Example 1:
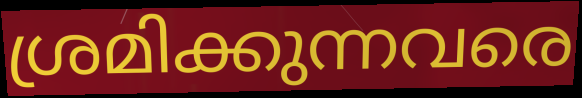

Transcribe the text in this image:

ശ്രമിക്കുന്നവരെ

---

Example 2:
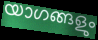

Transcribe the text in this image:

യാഗങ്ങളും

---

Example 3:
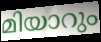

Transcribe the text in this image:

മിയാറും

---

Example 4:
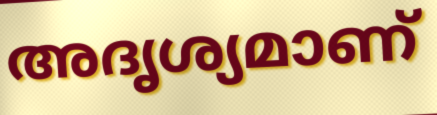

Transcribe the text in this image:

അദൃശ്യമാണ്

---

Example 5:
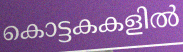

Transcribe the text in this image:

കൊട്ടകകളിൽ